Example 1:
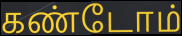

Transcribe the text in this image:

கண்டோம்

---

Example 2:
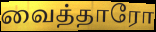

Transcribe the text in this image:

வைத்தாரோ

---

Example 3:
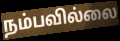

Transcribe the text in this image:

நம்பவில்லை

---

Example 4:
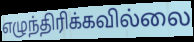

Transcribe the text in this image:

எழுந்திரிக்கவில்லை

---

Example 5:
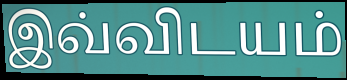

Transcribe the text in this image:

இவ்விடயம்